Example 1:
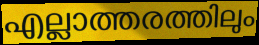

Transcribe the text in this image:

എല്ലാത്തരത്തിലും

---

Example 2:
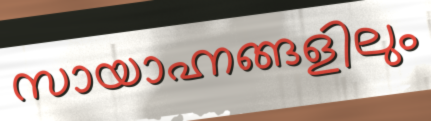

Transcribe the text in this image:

സായാഹ്നങ്ങളിലും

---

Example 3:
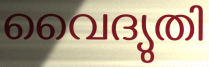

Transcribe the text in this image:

വൈദ്യുതി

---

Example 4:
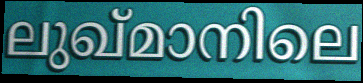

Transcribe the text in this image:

ലുഖ്മാനിലെ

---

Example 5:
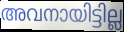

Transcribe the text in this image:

അവനായിട്ടില്ല